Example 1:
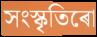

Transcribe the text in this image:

সংস্কৃতিৰো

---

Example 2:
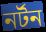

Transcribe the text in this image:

নৰ্টন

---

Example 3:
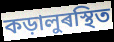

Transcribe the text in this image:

কড়ালুৰস্থিত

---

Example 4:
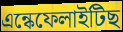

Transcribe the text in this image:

এন্কেফেলাইটিছ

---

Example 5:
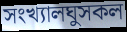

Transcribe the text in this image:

সংখ্যালঘুসকল